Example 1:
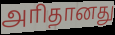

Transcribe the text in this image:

அரிதானது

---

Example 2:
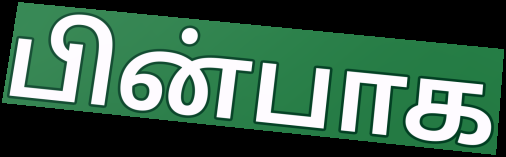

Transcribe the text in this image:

பின்பாக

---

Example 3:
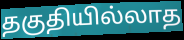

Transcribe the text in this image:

தகுதியில்லாத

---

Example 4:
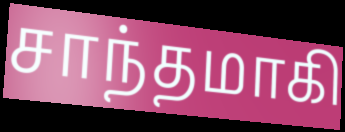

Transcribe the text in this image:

சாந்தமாகி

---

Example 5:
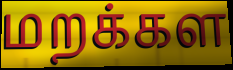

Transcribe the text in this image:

மறக்கள